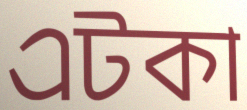
এটকা